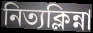
নিত্যক্লিন্না